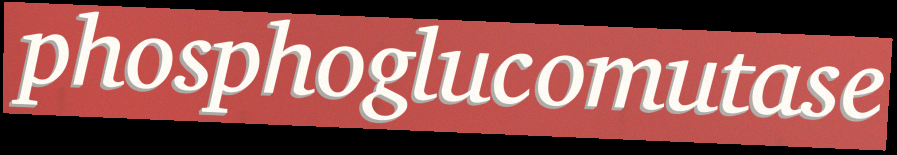
phosphoglucomutase